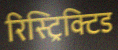
रिस्ट्रिक्टिड